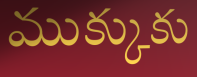
ముక్కుకు